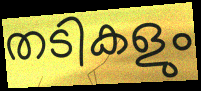
തടികളും